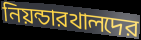
নিয়ন্ডারথালদের